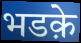
भडक़े